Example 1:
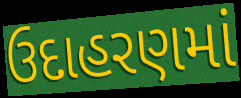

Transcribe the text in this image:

ઉદાહરણમાં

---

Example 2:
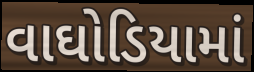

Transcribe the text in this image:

વાઘોડિયામાં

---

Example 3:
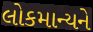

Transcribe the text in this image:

લોકમાન્યને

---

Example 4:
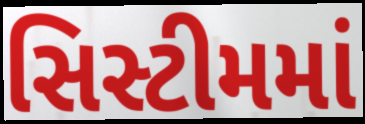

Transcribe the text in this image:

સિસ્ટીમમાં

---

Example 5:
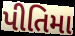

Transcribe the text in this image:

પીતિમા